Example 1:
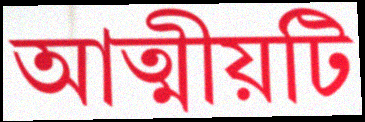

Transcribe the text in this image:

আত্মীয়টি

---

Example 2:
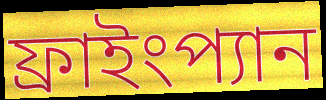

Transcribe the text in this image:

ফ্রাইংপ্যান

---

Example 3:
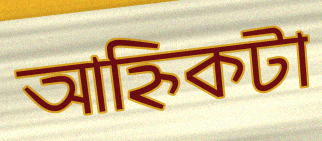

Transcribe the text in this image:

আহ্নিকটা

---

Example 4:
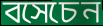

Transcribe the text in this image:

বসেচেন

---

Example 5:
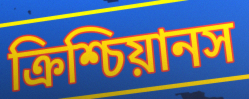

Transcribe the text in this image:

ক্রিশ্চিয়ানস